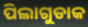
ପିଲାଗୁଡାକ